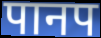
पानप